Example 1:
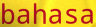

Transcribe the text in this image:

bahasa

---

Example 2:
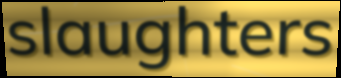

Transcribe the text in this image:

slaughters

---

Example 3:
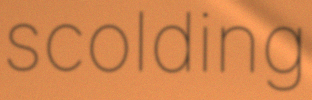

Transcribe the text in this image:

scolding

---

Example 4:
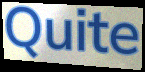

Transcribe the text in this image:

Quite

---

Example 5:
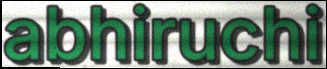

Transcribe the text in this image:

abhiruchi